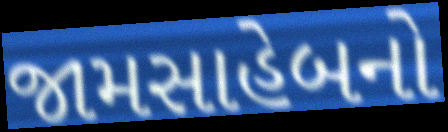
જામસાહેબનો